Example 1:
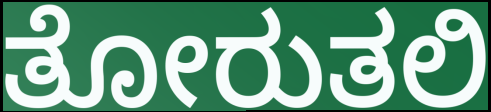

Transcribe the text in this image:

ತೋರುತಲಿ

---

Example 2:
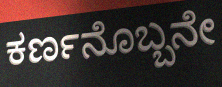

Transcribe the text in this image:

ಕರ್ಣನೊಬ್ಬನೇ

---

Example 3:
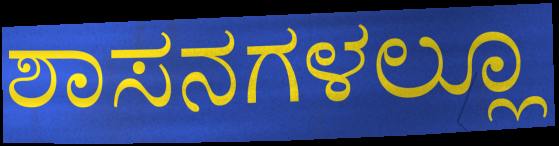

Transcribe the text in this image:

ಶಾಸನಗಳಲ್ಲೂ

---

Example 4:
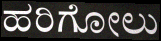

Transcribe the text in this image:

ಹರಿಗೋಲು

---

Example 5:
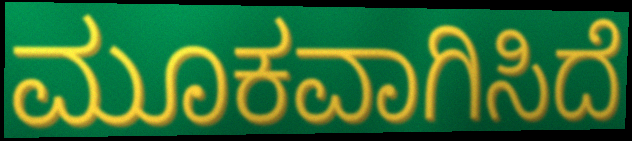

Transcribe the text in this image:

ಮೂಕವಾಗಿಸಿದೆ